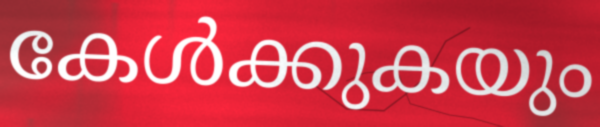
കേൾക്കുകയും